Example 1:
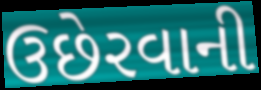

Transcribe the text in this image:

ઉછેરવાની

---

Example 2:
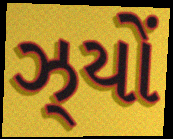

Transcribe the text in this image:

ઝ્યોં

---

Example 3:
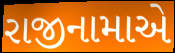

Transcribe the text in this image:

રાજીનામાએ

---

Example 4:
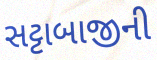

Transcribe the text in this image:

સટ્ટાબાજીની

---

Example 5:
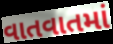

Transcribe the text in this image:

વાતવાતમાં